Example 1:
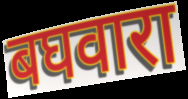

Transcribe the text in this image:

बघवारा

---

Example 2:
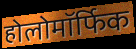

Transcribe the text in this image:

होलोमॉर्फिक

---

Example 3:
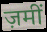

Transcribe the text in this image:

ज़मीं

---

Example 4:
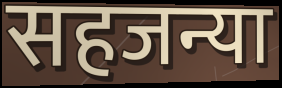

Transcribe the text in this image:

सहजन्या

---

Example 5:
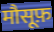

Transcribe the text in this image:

मौसूफ़